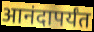
आनंदापर्यंत